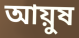
আয়ুষ